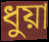
ধুয়া